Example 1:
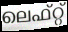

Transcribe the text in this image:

ലെഫ്റ്റ്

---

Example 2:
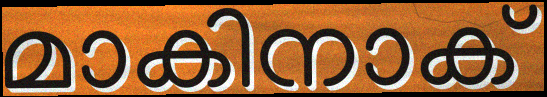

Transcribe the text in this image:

മാകിനാക്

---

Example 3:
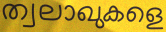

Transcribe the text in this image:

ത്വലാഖുകളെ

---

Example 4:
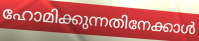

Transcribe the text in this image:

ഹോമിക്കുന്നതിനേക്കാൾ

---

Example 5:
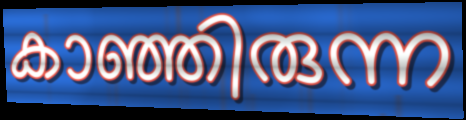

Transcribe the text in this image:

കാഞ്ഞിരുന്ന